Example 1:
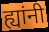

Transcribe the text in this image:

ह्यांनी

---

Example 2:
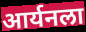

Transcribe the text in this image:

आर्यनला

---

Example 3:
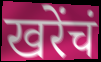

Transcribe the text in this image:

खरेंचं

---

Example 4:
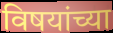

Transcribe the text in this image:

विषयांच्या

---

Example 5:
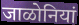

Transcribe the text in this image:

जाळोनियां